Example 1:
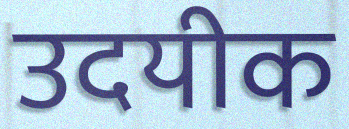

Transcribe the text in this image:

उदयीक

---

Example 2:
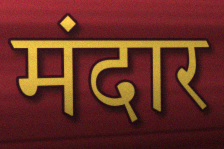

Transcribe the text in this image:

मंदार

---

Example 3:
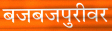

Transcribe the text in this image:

बजबजपुरीवर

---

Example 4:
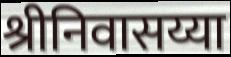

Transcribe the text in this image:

श्रीनिवासय्या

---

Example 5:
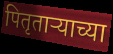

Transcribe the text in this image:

पितृताऱ्याच्या